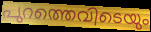
പുറത്തെവിടെയും